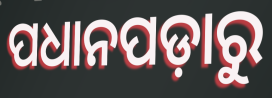
ପଧାନପଡ଼ାରୁ